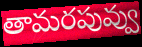
తామరపువ్వు